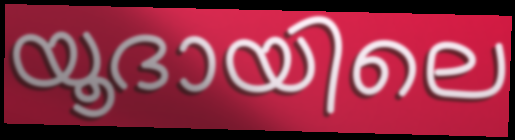
യൂദായിലെ